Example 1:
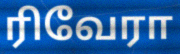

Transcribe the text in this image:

ரிவேரா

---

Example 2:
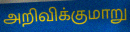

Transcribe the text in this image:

அறிவிக்குமாறு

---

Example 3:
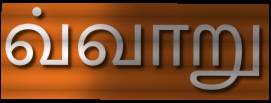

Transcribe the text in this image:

வ்வாறு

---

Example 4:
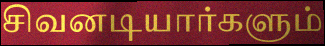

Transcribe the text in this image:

சிவனடியார்களும்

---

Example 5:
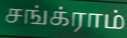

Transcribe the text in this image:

சங்க்ராம்